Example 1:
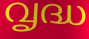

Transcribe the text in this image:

വൃദ്ധ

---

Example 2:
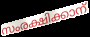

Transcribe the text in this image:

സംരക്ഷിക്കാന്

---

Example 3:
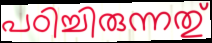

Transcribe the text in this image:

പഠിച്ചിരുന്നതു്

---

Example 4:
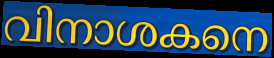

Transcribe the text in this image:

വിനാശകനെ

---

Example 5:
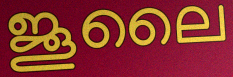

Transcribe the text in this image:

ജൂലൈ